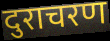
दुराचरण